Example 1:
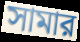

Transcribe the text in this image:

সামার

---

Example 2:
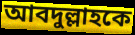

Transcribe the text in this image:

আবদুল্লাহকে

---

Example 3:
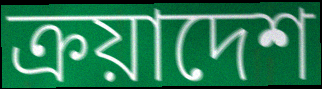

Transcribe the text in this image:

ক্রয়াদেশ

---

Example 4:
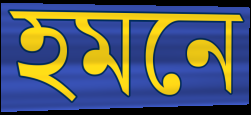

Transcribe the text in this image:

হমনে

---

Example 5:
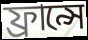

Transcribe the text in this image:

ফ্রান্সে